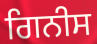
ਗਿਨੀਸ